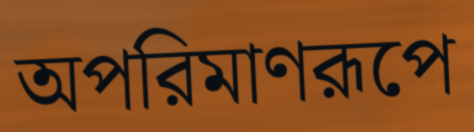
অপরিমাণরূপে